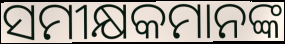
ସମୀକ୍ଷକମାନଙ୍କ